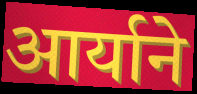
आर्याने